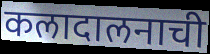
कलादालनाची